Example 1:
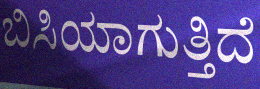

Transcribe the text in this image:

ಬಿಸಿಯಾಗುತ್ತಿದೆ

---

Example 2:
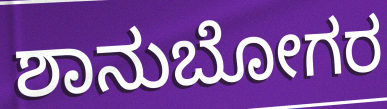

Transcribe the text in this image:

ಶಾನುಬೋಗರ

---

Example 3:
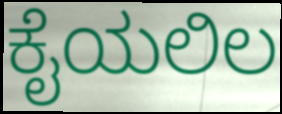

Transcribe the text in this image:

ಕೈಯಲಿಲ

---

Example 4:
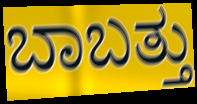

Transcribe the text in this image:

ಬಾಬತ್ತು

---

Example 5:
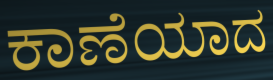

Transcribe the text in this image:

ಕಾಣೆಯಾದ